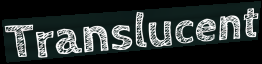
Translucent